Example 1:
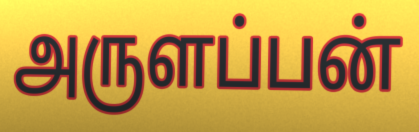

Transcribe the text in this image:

அருளப்பன்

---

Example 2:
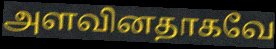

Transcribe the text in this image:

அளவினதாகவே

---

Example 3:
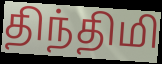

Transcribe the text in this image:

திந்திமி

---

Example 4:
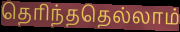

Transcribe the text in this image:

தெரிந்ததெல்லாம்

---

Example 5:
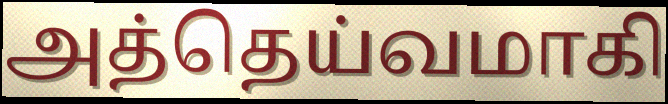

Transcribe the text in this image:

அத்தெய்வமாகி